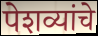
पेशव्यांचे